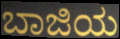
ಬಾಜಿಯ